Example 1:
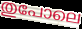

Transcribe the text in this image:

തുപോലെ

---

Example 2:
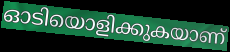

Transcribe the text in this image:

ഓടിയൊളിക്കുകയാണ്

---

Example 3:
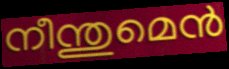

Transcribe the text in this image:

നീന്തുമെൻ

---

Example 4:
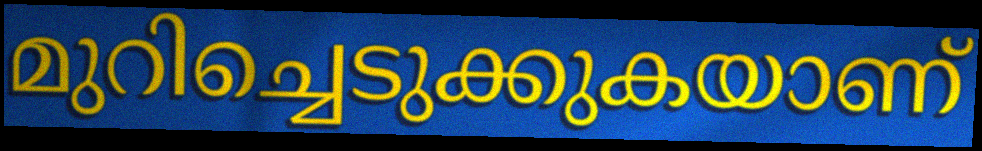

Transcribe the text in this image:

മുറിച്ചെടുക്കുകയാണ്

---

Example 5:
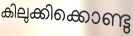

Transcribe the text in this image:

കിലുക്കിക്കൊണ്ടു